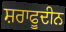
ਸ਼ਰਾਫੂਦੀਨ